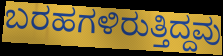
ಬರಹಗಳಿರುತ್ತಿದ್ದವು